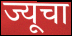
ज्यूचा